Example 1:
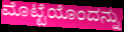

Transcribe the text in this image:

ಮೊಟ್ಟೆಯೊಂದನ್ನು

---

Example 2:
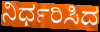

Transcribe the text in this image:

ನಿರ್ಧರಿಸಿದ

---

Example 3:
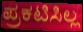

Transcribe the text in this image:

ಪ್ರಕಟಿಸಿಲ್ಲ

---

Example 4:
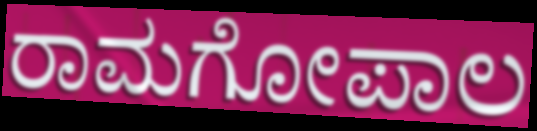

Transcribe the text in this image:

ರಾಮಗೋಪಾಲ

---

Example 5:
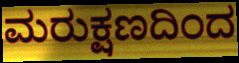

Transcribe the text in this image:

ಮರುಕ್ಷಣದಿಂದ